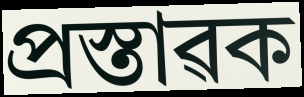
প্ৰস্তাৱক